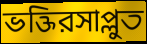
ভক্তিরসাপ্লুত